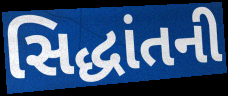
સિદ્ધાંતની